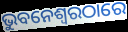
ଭୁବନେଶ୍ଵରଠାରେ